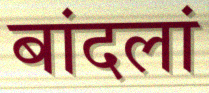
बांदलां